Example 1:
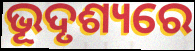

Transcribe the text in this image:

ଭୂଦୃଶ୍ୟରେ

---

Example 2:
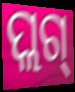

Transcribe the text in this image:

ପ୍ଲଗ୍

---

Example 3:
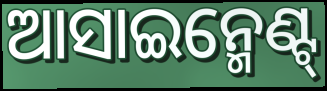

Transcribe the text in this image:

ଆସାଇନ୍ମେଣ୍ଟ୍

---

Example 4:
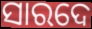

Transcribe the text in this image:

ସାରଦେ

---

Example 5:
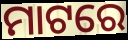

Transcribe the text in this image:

ମାଟରେ